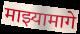
माझ्यामागे